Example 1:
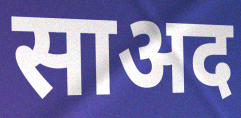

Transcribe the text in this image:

साअद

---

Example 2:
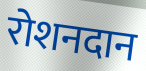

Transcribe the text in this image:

रोशनदान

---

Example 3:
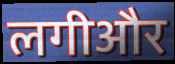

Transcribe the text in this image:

लगीऔर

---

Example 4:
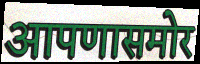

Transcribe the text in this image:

आपणासमोर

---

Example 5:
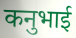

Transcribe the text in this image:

कनुभाई